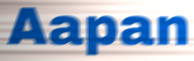
Aapan